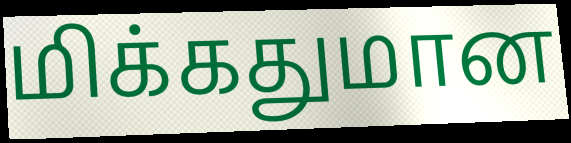
மிக்கதுமான